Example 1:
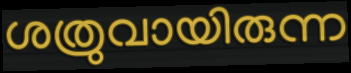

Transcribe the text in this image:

ശത്രുവായിരുന്ന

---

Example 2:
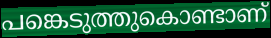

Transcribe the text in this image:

പങ്കെടുത്തുകൊണ്ടാണ്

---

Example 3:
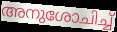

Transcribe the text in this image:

അനുശോചിച്ച്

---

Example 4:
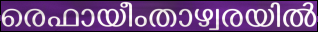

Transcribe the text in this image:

രെഫായീംതാഴ്വരയിൽ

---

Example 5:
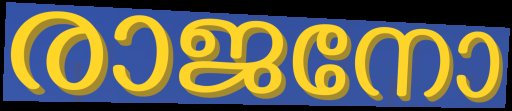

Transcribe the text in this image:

രാജനോ